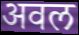
अवल